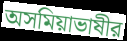
অসমিয়াভাষীর